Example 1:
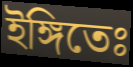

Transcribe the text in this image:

ইঙ্গিতেঃ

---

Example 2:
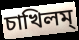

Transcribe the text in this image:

চাখিলম্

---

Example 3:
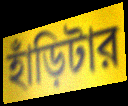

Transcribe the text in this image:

হাঁড়িটার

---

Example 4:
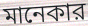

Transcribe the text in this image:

মানেকার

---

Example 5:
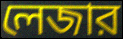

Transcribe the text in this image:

লেজার